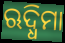
ଋଦ୍ଧିମା